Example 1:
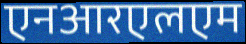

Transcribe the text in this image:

एनआरएलएम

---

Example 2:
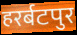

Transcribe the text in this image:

हरर्बटपुर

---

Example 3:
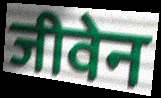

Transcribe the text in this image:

जीवेन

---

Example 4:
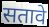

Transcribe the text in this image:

सतावे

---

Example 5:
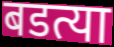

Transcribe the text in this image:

बडत्या